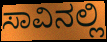
ಸಾವಿನಲ್ಲಿ